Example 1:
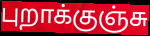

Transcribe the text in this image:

புறாக்குஞ்சு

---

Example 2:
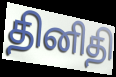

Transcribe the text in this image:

தினிதி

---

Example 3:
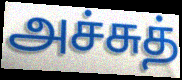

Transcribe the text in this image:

அச்சுத்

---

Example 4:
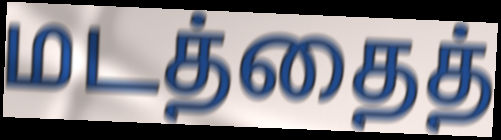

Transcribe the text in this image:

மடத்தைத்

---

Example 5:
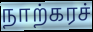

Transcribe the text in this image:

நாற்கரச்